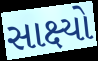
સાક્ષ્યો